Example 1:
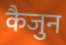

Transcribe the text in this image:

कैजुन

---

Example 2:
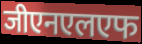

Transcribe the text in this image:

जीएनएलएफ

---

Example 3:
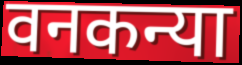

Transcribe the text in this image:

वनकन्या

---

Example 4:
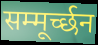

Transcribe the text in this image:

सम्मूर्च्छन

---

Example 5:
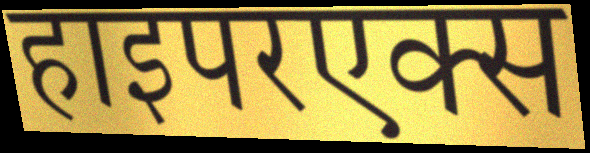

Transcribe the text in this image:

हाइपरएक्स